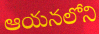
ఆయనలోని